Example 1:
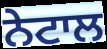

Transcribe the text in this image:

ਨੇਟਾਲ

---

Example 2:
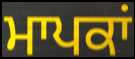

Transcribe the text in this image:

ਮਾਪਕਾਂ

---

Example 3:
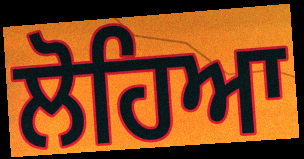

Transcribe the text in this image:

ਲੋਹਿਆ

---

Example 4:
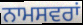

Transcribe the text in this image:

ਨਾਮਸਵਰਾਂ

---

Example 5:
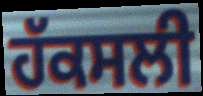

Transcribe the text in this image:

ਹੱਕਸਲੀ